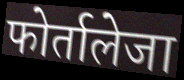
फोर्तालेजा